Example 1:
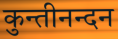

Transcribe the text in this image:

कुन्तीनन्दन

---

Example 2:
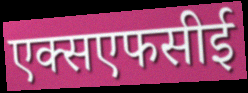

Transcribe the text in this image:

एक्सएफसीई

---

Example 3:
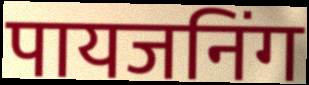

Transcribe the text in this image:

पायजनिंग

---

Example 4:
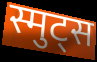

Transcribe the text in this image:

स्मुट्स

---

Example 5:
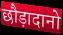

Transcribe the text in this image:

छौड़ादानो